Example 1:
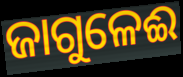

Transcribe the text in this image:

ଜାଗୁଳେଈ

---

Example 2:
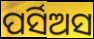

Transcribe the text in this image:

ପର୍ସିଅସ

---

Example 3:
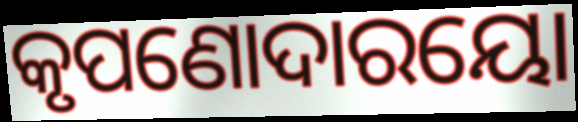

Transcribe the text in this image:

କୃପଣୋଦାରୟୋ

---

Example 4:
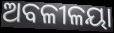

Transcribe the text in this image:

ଅବଳୀଳୟା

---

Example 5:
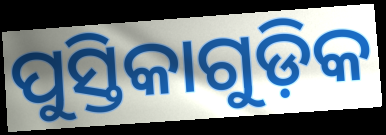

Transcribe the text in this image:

ପୁସ୍ତିକାଗୁଡ଼ିକ